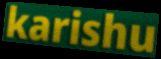
karishu